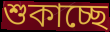
শুকাচ্ছে